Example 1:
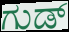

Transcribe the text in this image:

ಗುಡ್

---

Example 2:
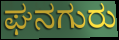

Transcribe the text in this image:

ಘನಗುರು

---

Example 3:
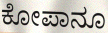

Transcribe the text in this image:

ಕೋಪಾನೂ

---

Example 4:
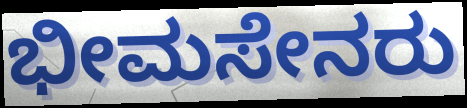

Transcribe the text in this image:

ಭೀಮಸೇನರು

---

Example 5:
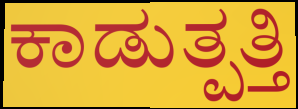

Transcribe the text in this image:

ಕಾಡುತ್ಪತ್ತಿ